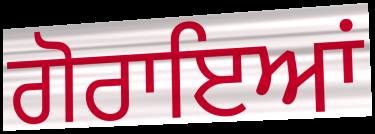
ਗੋਰਾਇਆਂ